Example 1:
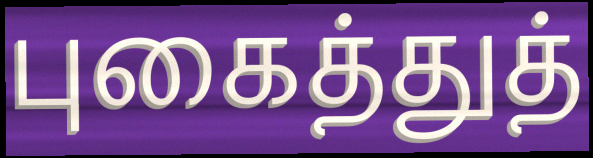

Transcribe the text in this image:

புகைத்துத்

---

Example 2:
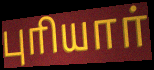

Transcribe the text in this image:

புரியார்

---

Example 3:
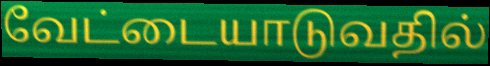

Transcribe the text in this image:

வேட்டையாடுவதில்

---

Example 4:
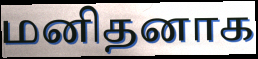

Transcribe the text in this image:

மனிதனாக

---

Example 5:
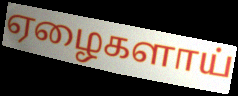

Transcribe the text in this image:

ஏழைகளாய்